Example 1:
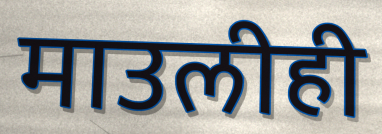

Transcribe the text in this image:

माउलीही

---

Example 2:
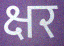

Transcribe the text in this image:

क्षर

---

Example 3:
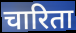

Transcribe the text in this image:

चारिता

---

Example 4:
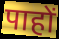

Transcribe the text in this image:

पाहों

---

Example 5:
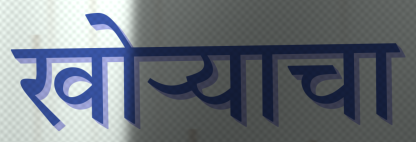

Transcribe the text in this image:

खोर्‍याचा